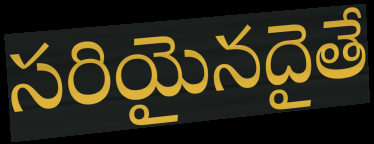
సరియైనదైతే